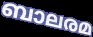
ബാലരമ